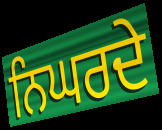
ਨਿਘਰਦੇ